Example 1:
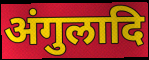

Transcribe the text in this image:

अंगुलादि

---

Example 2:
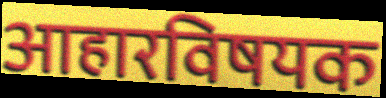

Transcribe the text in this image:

आहारविषयक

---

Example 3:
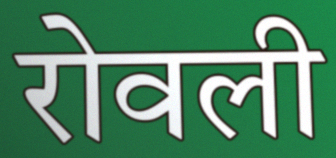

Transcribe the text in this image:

रोवली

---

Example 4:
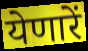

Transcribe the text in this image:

येणारें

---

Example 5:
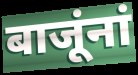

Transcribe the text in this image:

बाजूंनां